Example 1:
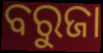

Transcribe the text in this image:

ବରୁଜା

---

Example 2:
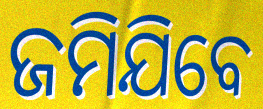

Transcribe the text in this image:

ଜମିଯିବେ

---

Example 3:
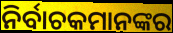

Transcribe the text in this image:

ନିର୍ବାଚକମାନଙ୍କର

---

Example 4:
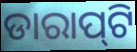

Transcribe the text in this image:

ଡାରାପ୍‌ଟି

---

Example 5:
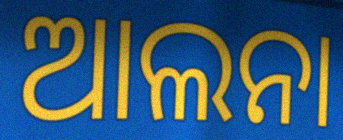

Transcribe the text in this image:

ଆଲନା